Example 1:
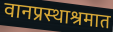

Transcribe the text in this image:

वानप्रस्थाश्रमात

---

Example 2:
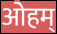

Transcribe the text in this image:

ओहम्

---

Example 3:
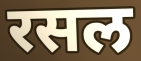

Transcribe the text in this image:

रसल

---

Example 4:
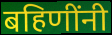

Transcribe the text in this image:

बहिणींनी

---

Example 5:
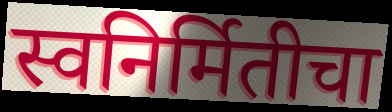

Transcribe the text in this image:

स्वनिर्मितीचा